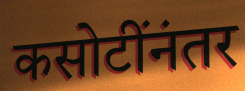
कसोटींनंतर